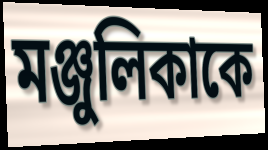
মঞ্জুলিকাকে